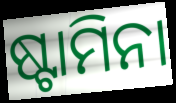
ଷ୍ଟାମିନା